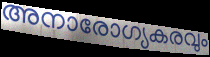
അനാരോഗ്യകരവും